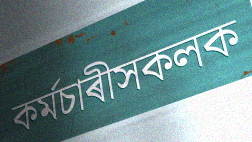
কৰ্মচাৰীসকলক